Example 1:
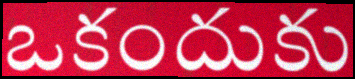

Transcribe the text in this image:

ఒకందుకు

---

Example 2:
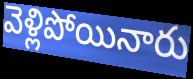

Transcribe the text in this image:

వెళ్లిపోయినారు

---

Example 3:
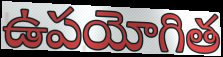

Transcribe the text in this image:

ఉపయోగిత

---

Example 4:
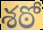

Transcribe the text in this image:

శఠో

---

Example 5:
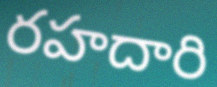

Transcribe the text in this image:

రహదారి